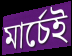
মার্চেই